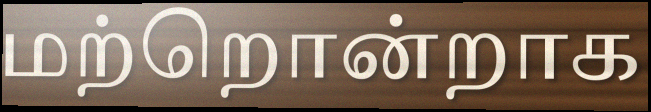
மற்றொன்றாக